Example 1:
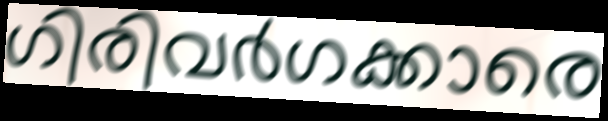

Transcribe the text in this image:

ഗിരിവർഗക്കാരെ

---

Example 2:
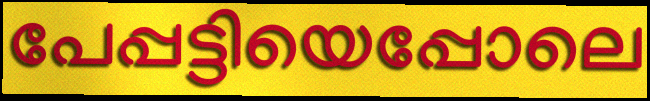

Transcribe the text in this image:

പേപ്പട്ടിയെപ്പോലെ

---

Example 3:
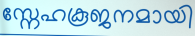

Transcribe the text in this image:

സ്നേഹകൂജനമായി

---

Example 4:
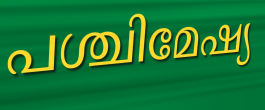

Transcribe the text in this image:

പശ്ചിമേഷ്യ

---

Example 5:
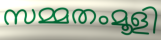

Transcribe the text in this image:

സമ്മതംമൂളി